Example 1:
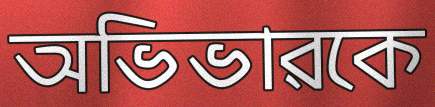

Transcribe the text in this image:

অভিভাৱকে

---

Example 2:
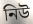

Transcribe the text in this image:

নিউ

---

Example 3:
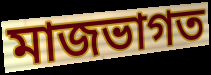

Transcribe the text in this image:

মাজভাগত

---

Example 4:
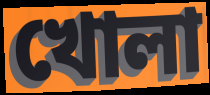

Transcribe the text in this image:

খোলা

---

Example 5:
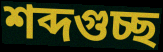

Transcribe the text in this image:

শব্দগুচ্ছ